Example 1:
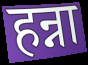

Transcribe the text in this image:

हन्ना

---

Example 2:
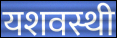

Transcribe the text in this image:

यशवस्थी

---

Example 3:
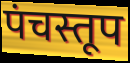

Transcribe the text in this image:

पंचस्तूप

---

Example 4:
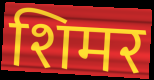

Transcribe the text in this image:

शिमर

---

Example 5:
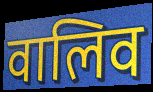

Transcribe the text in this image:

वालिव